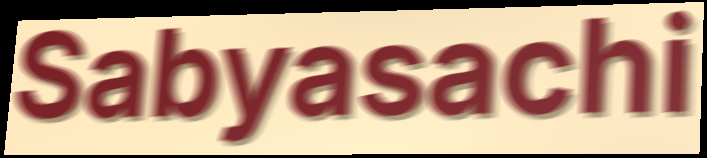
Sabyasachi